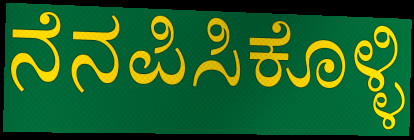
ನೆನಪಿಸಿಕೊಳ್ಳಿ